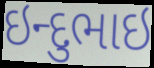
ઇન્દુભાઇ